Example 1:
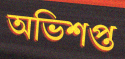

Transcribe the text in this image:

অভিশপ্ত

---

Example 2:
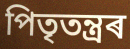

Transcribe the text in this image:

পিতৃতন্ত্ৰৰ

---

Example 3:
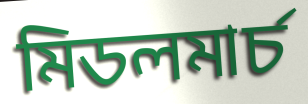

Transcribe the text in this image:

মিডলমাৰ্চ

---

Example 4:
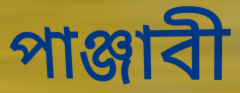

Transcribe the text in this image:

পাঞ্জাবী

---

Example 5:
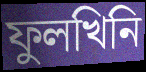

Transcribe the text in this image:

ফুলখিনি